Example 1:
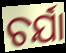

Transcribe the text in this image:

ଚର୍ଯା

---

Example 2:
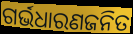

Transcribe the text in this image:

ଗର୍ଭଧାରଣଜନିତ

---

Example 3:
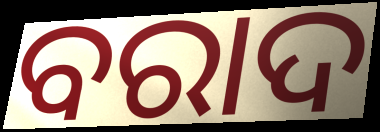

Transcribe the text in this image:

ବରାଦ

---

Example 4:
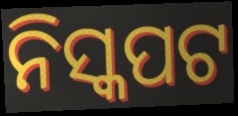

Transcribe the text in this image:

ନିସ୍କପଟ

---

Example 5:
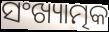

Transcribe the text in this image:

ସଂଖ୍ୟାତ୍ମକ